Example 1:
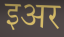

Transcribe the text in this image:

इअर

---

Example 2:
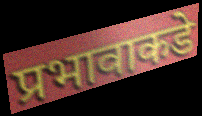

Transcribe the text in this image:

प्रभावाकडे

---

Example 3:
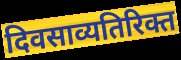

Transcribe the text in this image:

दिवसाव्यतिरिक्त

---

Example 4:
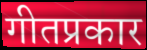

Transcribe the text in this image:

गीतप्रकार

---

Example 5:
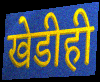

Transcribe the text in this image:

खेडीही